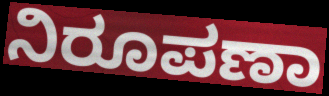
ನಿರೂಪಣಾ